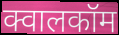
क्वालकॉम